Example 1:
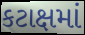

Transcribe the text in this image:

કટાક્ષમાં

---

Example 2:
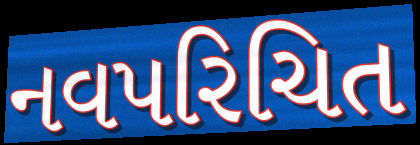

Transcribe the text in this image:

નવપરિચિત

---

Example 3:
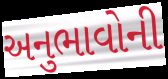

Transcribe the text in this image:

અનુભાવોની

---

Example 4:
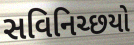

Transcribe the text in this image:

સવિનિચ્છયો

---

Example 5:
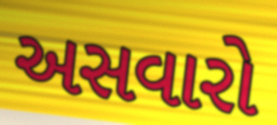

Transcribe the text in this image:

અસવારો